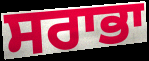
ਸਰਾਭਾ